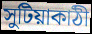
সুটিয়াকাঠী